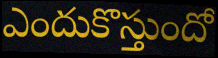
ఎందుకొస్తుందో